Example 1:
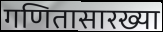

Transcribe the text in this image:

गणितासारख्या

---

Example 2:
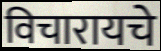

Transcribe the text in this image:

विचारायचे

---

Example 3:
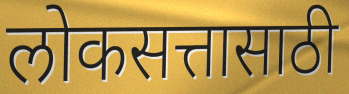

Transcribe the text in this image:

लोकसत्तासाठी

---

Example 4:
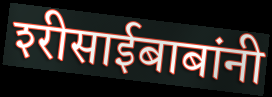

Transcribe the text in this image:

श्रीसाईबाबांनी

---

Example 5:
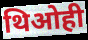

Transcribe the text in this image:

थिओही